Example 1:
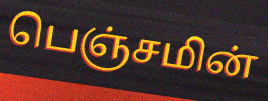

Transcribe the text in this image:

பெஞ்சமின்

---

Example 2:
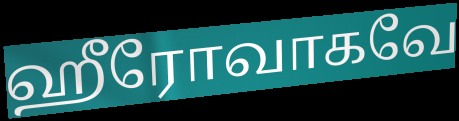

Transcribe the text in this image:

ஹீரோவாகவே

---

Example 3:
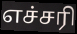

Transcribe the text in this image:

எச்சரி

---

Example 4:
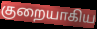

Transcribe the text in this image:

குறையாகிய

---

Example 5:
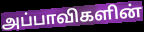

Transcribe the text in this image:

அப்பாவிகளின்